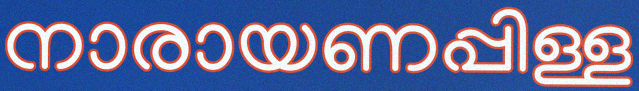
നാരായണപ്പിള്ള